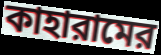
কাহারামের